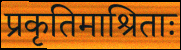
प्रकृतिमाश्रिताः